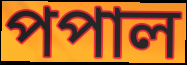
পপাল